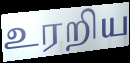
உரறிய